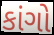
કાંગો